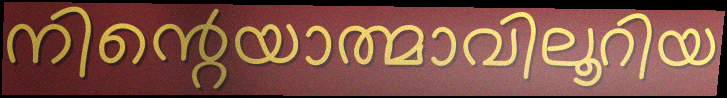
നിന്റെയാത്മാവിലൂറിയ